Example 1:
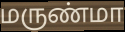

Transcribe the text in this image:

மருண்மா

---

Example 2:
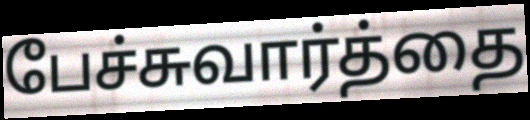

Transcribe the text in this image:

பேச்சுவார்த்தை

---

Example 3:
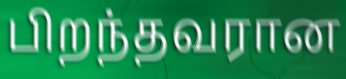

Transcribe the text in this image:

பிறந்தவரான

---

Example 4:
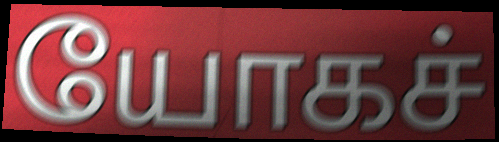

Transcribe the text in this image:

யோகச்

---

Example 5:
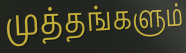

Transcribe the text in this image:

முத்தங்களும்